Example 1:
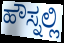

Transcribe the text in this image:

ಹೌಸ್ನಲ್ಲಿ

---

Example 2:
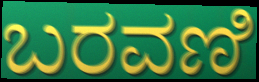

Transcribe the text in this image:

ಬರವಣಿ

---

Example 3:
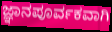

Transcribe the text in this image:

ಜ್ಞಾನಪೂರ್ವಕವಾಗಿ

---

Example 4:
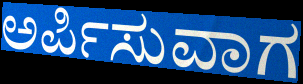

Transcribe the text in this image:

ಅರ್ಪಿಸುವಾಗ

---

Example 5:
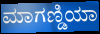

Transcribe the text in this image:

ಮಾಗಣ್ಡಿಯಾ